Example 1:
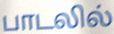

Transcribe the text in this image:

பாடலில்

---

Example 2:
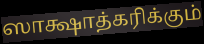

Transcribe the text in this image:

ஸாக்ஷாத்கரிக்கும்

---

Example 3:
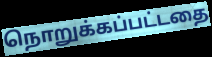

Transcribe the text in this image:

நொறுக்கப்பட்டதை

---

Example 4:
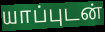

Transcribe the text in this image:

யாப்புடன்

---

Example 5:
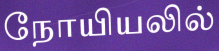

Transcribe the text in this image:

நோயியலில்